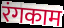
रंगकाम